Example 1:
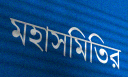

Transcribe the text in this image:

মহাসমিতির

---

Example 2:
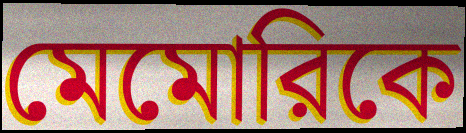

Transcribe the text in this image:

মেমোরিকে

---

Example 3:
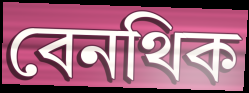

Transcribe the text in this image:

বেনথিক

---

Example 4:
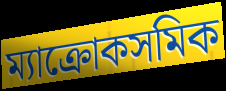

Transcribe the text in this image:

ম্যাক্রোকসমিক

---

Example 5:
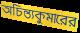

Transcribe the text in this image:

অচিন্ত্যকুমারের